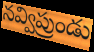
నవ్విప్రుండు